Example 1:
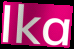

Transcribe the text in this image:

Ika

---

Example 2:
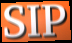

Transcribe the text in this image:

SIP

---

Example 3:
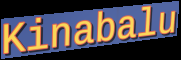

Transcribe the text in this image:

Kinabalu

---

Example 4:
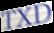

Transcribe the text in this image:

TXD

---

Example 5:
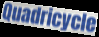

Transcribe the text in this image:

Quadricycle